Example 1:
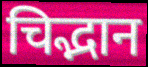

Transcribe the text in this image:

चिद्भान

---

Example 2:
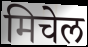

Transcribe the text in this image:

मिचेल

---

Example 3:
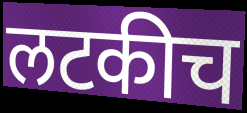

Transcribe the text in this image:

लटकीच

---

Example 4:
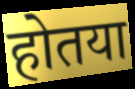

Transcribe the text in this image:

होतया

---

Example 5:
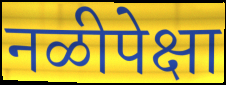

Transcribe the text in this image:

नळीपेक्षा